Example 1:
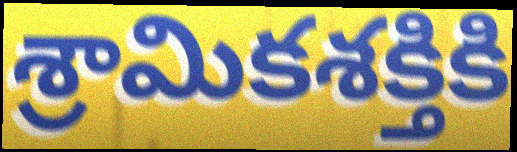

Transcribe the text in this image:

శ్రామికశక్తికి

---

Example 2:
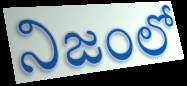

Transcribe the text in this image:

నిజంలో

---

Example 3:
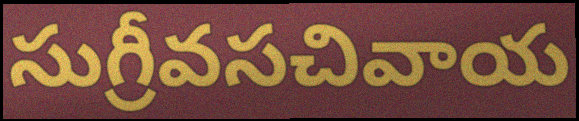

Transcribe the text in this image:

సుగ్రీవసచివాయ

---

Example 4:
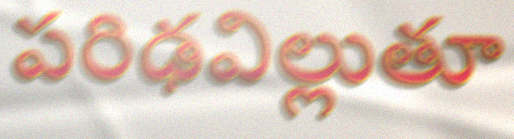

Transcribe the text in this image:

పరిఢవిల్లుతూ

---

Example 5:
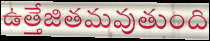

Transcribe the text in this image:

ఉత్తేజితమవుతుంది